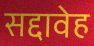
सद्दावेह